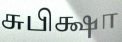
சுபிக்ஷா